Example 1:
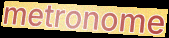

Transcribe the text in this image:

metronome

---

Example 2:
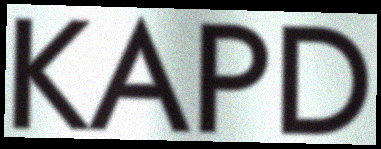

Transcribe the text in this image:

KAPD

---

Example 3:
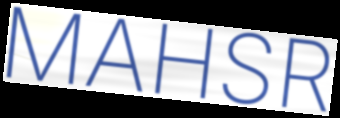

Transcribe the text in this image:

MAHSR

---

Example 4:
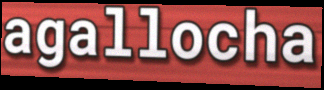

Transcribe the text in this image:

agallocha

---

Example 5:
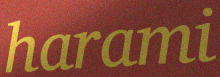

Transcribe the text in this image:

harami